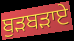
ਬੁੜਬੜਾਏ